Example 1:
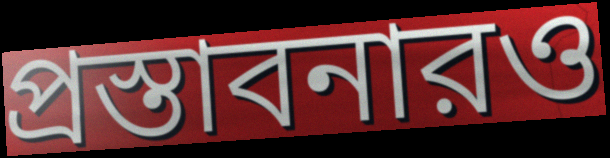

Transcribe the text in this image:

প্রস্তাবনারও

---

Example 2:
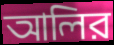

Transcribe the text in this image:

আলির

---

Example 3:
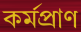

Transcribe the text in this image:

কর্মপ্রাণ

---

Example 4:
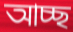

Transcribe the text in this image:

আচ্ছ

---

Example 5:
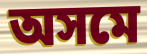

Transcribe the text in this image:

অসমে